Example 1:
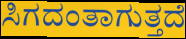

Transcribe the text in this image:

ಸಿಗದಂತಾಗುತ್ತದೆ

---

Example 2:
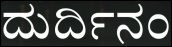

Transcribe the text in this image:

ದುರ್ದಿನಂ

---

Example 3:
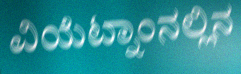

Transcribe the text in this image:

ವಿಯೆಟ್ನಾಂನಲ್ಲಿನ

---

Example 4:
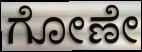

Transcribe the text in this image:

ಗೋಣೇ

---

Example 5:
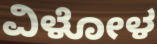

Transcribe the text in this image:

ವಿಳೋಳ